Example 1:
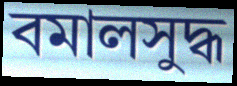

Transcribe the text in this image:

বমালসুদ্ধ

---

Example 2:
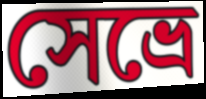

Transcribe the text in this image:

সেভ্রে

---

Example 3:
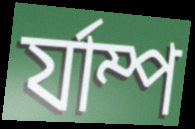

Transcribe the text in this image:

র্যাম্প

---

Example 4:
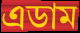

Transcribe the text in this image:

এডাম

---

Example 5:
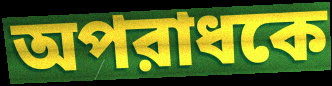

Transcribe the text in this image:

অপরাধকে